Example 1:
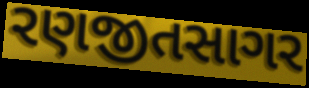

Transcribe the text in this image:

રણજીતસાગર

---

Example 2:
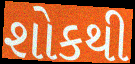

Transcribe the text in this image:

શોકથી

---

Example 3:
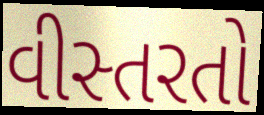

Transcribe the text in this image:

વીસ્તરતો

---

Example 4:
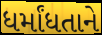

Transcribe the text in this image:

ધર્માંધતાને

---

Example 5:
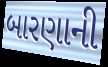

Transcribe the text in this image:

બારણાની